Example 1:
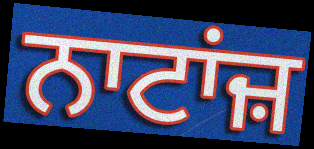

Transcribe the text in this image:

ਨਾਟਾਂਜ਼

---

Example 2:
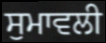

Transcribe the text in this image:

ਸੁਮਾਵਲੀ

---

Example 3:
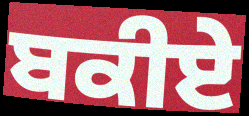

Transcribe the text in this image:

ਬਕੀਏ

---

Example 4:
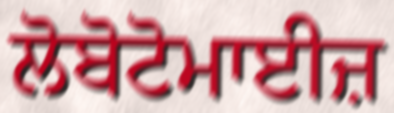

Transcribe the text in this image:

ਲੋਬੋਟੋਮਾਈਜ਼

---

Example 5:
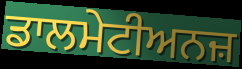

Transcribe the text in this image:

ਡਾਲਮੇਟੀਅਨਜ਼